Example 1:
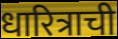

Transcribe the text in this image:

धारित्राची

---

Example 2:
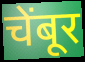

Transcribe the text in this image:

चेंबूर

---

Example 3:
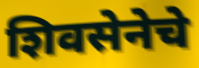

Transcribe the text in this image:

शिवसेनेचे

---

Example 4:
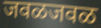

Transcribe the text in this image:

जवळजवळ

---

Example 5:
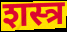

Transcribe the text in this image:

शस्त्र